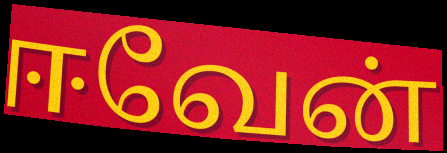
ஈவேன்